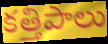
కత్తిపాలు